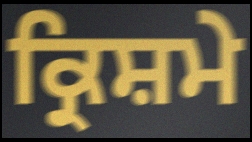
ਕ੍ਰਿਸ਼ਮੇ